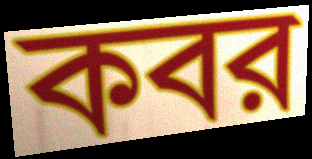
কবর